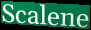
Scalene